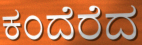
ಕಂದೆರೆದ